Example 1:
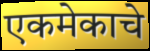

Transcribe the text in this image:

एकमेकाचे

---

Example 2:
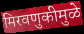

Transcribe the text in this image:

मिरवणुकीमुळे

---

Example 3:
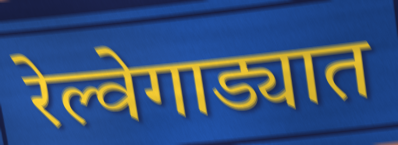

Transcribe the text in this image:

रेल्वेगाड्यात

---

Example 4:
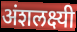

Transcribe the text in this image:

अंशलक्ष्यी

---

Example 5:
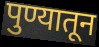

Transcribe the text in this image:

पुण्यातून